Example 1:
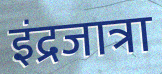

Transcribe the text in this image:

इंद्रजात्रा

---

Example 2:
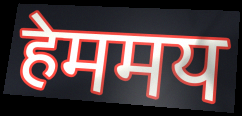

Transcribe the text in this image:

हेममय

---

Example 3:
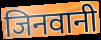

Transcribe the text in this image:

जिनवानी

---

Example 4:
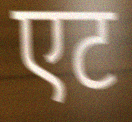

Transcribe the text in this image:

एट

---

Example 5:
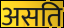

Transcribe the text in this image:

असति